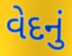
વેદનું